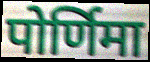
पोर्णिमा